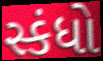
સ્કંધો